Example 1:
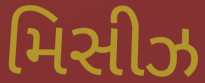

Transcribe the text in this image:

મિસીઝ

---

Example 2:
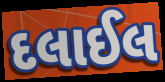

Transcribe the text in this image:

દલાઈલ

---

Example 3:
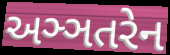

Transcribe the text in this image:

અઞ્ઞતરેન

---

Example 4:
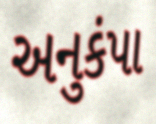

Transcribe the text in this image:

અનુકંપા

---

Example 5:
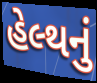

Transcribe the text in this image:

હેલ્થનું